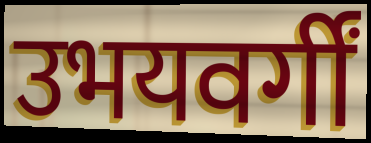
उभयवर्गीं